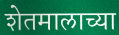
शेतमालाच्या